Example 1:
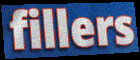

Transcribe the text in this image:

fillers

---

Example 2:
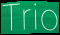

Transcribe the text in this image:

Trio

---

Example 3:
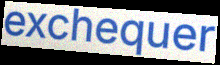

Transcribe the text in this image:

exchequer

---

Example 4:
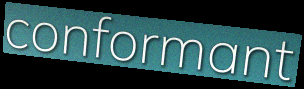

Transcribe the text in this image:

conformant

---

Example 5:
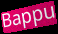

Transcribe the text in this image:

Bappu